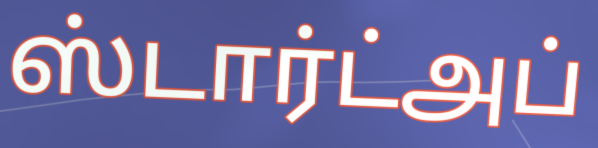
ஸ்டார்ட்அப்